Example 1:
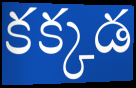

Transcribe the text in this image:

కక్కడ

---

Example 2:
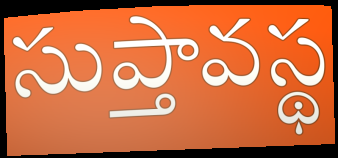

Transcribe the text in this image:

సుప్తావస్థ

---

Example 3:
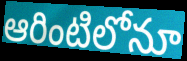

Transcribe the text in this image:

ఆరింటిలోనూ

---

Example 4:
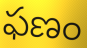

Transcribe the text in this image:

ఫణం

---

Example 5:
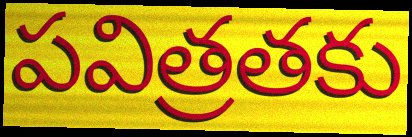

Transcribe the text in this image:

పవిత్రతకు